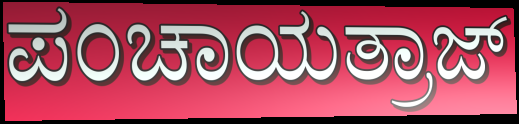
ಪಂಚಾಯತ್ರಾಜ್